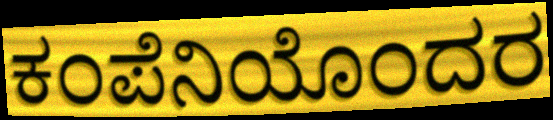
ಕಂಪೆನಿಯೊಂದರ